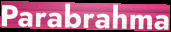
Parabrahma